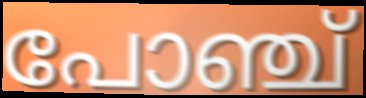
പോഞ്ച്